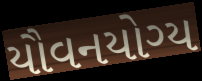
યૌવનયોગ્ય